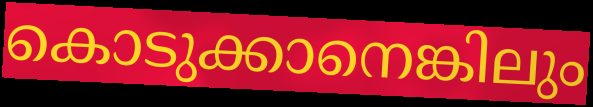
കൊടുക്കാനെങ്കിലും